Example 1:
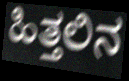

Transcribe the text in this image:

ಹಿತ್ತಲಿನ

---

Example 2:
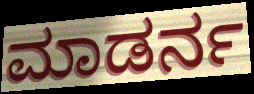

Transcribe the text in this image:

ಮಾಡರ್ನ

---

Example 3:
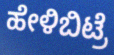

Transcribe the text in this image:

ಹೇಳಿಬಿಟ್ರೆ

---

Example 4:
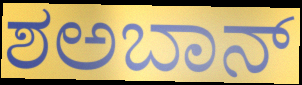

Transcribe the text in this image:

ಶಅಬಾನ್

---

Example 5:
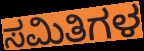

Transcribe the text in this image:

ಸಮಿತಿಗಳ